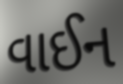
વાઈન